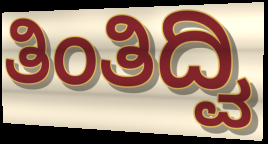
ತಿಂತಿದ್ವಿ